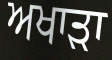
ਅਖਾੜਾ